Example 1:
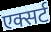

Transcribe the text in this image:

एक्सर्ट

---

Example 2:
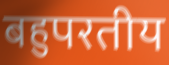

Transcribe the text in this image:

बहुपरतीय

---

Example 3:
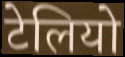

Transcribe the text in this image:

टेलियो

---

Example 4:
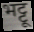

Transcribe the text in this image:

भट्टू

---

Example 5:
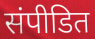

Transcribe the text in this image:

संपीडित